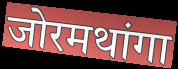
जोरमथांगा